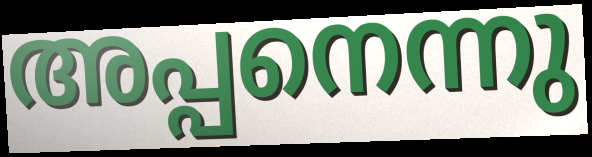
അപ്പനെന്നു